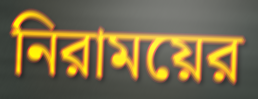
নিরাময়ের